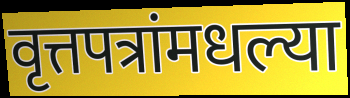
वृत्तपत्रांमधल्या